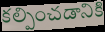
కల్పించడానికి